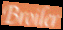
Broiler